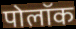
पोलॉक